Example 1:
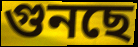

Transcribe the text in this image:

গুনছে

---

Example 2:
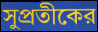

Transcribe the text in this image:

সুপ্রতীকের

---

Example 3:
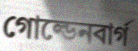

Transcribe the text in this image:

গোল্ডেনবার্গ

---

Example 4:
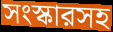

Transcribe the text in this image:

সংস্কারসহ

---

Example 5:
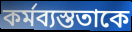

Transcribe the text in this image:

কর্মব্যস্ততাকে